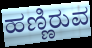
ಹಣ್ಣಿರುವ